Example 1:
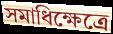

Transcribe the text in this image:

সমাধিক্ষেত্রে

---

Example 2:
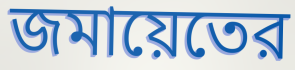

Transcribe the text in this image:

জমায়েতের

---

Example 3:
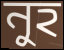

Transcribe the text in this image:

নুহ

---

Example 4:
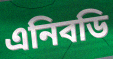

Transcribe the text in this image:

এনিবডি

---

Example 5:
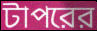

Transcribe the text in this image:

টাপরের